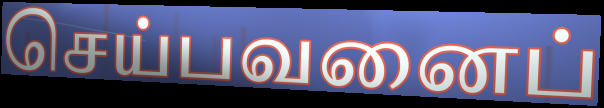
செய்பவனைப்